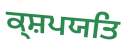
ਕ੍ਸ਼ਪਯਤਿ